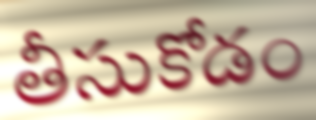
తీసుకోడం